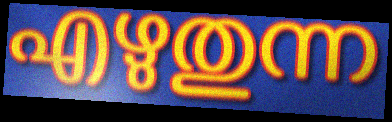
എഴുതുന്ന